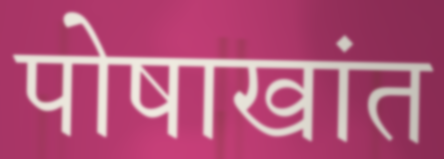
पोषाखांत